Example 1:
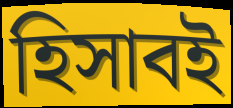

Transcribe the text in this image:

হিসাবই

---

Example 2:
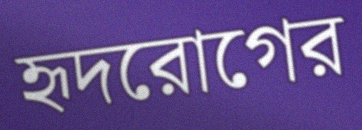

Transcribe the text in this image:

হৃদরোগের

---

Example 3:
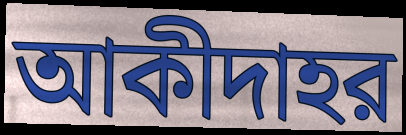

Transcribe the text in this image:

আকীদাহর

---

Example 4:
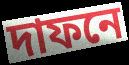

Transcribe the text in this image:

দাফনে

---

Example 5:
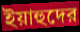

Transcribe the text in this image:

ইয়াহুদের